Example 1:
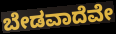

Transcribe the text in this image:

ಬೇಡವಾದೆವೇ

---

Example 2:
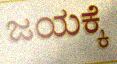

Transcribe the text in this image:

ಜಯಕ್ಕೆ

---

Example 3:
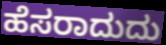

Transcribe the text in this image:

ಹೆಸರಾದುದು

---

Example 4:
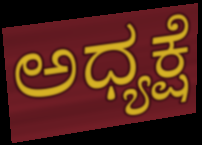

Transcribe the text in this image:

ಅಧ್ಯಕ್ಷೆ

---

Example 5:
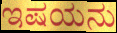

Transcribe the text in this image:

ಇಷಯನು